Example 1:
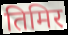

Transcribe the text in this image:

तिमिर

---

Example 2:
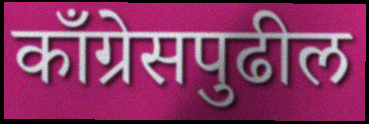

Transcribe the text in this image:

काँग्रेसपुढील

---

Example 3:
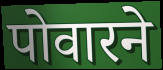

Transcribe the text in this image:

पोवारने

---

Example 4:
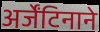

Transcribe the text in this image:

अर्जेंटिनाने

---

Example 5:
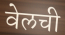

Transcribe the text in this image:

वेलची